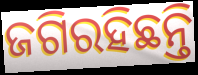
ଜଗିରହିଛନ୍ତି